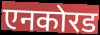
एनकोरड